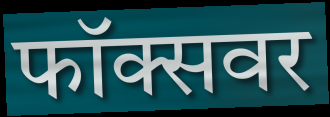
फॉक्सवर